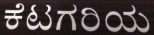
ಕೆಟಗರಿಯ